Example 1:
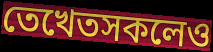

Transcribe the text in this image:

তেখেতসকলেও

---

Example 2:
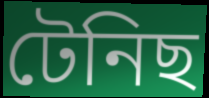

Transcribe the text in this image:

টেনিছ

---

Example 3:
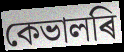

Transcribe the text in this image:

কেভালৰি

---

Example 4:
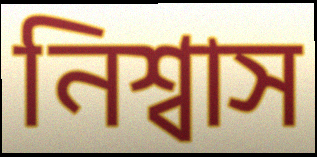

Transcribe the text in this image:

নিশ্বাস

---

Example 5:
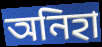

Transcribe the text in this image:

অনিহা